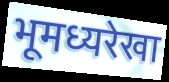
भूमध्यरेखा